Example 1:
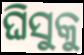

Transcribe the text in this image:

ଘିସୁକୁ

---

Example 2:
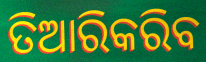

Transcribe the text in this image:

ତିଆରିକରିବ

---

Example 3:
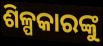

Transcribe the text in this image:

ଶିଳ୍ପକାରଙ୍କୁ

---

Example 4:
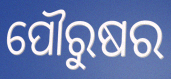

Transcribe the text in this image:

ପୌରୁଷର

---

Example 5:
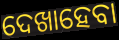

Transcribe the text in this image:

ଦେଖାହେବା